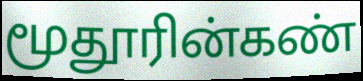
மூதூரின்கண்